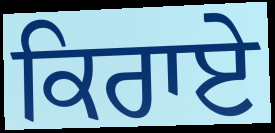
ਕਿਰਾਏ